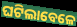
ଘଟିଲାବେଳେ